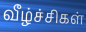
வீழ்ச்சிகள்